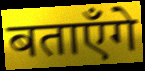
बताएँगे